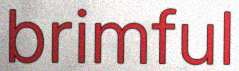
brimful